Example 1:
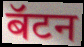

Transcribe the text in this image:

बॅटन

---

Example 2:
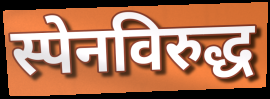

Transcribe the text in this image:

स्पेनविरुद्ध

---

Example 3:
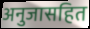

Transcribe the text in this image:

अनुजासहित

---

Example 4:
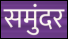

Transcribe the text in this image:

समुंदर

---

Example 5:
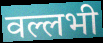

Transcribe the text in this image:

वल्लभी